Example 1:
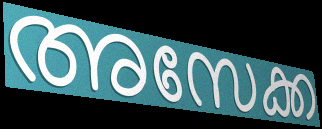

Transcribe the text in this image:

അസേക്ക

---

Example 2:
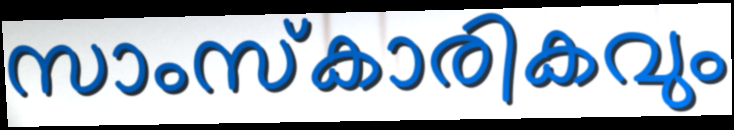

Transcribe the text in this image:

സാംസ്കാരികവും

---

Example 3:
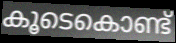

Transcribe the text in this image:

കൂടെകൊണ്ട്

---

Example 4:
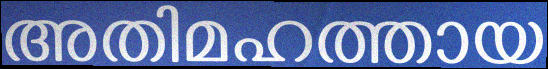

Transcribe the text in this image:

അതിമഹത്തായ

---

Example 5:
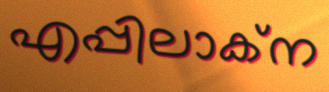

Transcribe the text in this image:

എപ്പിലാക്ന